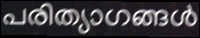
പരിത്യാഗങ്ങൾ